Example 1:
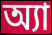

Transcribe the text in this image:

অ্যা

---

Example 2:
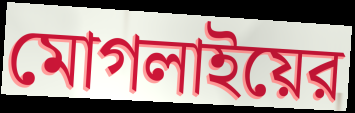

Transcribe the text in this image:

মোগলাইয়ের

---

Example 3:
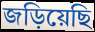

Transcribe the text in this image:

জড়িয়েছি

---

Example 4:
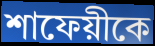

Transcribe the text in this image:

শাফেয়ীকে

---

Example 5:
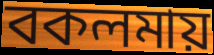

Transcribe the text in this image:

বকলমায়